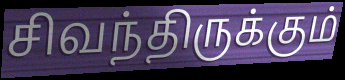
சிவந்திருக்கும்